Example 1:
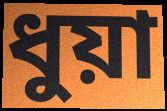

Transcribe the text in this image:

ধুয়া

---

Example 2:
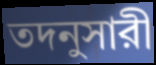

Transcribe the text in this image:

তদনুসারী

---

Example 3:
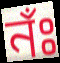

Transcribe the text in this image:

নঁঃ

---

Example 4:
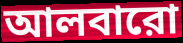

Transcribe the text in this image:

আলবারো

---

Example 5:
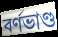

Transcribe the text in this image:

বর্ণভাণ্ড